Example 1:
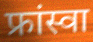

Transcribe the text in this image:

फ्रांस्वा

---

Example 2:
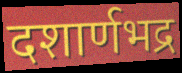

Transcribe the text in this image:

दशार्णभद्र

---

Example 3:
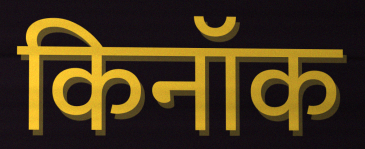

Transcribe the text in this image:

किनॉक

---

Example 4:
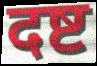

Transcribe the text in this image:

दष्ट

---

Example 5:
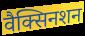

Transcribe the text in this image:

वैक्सिनशन